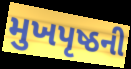
મુખપૃષ્ઠની